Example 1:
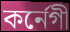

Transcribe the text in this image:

কর্নেগী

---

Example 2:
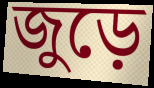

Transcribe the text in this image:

জুড়ে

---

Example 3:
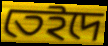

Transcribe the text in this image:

তেইদে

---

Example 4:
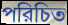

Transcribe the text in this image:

পরিচিত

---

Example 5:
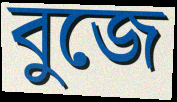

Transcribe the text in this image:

বুজে